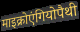
माइक्रोएंगियोपैथी